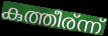
കുത്തീര്ന്ന്